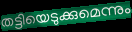
തട്ടിയെടുക്കുമെന്നും